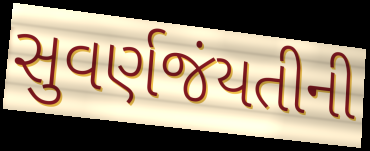
સુવર્ણજંયતીની